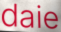
daie